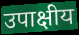
उपाक्षीय